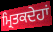
ਮ੍ਰਿਤਕਦੇਹਾਂ